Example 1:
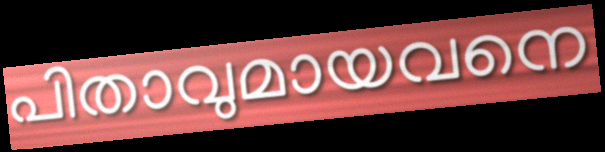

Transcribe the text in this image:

പിതാവുമായവനെ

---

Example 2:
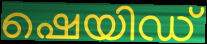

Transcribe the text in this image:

ഷെയിഡ്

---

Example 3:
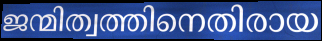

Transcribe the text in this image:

ജന്മിത്വത്തിനെതിരായ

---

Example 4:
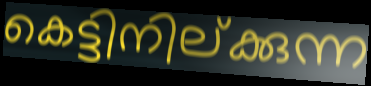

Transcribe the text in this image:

കെട്ടിനില്ക്കുന്ന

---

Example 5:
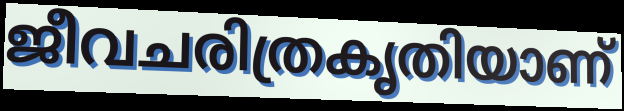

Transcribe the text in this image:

ജീവചരിത്രകൃതിയാണ്